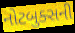
નોટબુક્સની